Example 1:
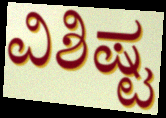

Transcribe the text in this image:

ವಿಶಿಷ್ಟ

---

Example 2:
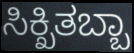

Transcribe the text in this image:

ಸಿಕ್ಖಿತಬ್ಬಾ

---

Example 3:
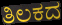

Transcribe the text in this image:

ತಿಲಕದ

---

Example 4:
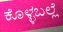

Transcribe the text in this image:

ಕೊಳ್ಳಬಲ್ಲೆ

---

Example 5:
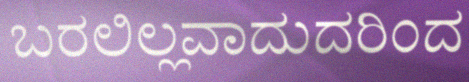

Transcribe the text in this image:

ಬರಲಿಲ್ಲವಾದುದರಿಂದ